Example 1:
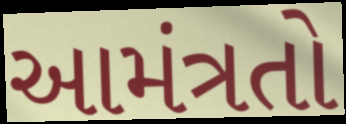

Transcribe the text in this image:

આમંત્રતો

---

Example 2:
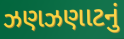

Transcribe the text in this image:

ઝણઝણાટનું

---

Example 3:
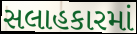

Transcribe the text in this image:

સલાહકારમાં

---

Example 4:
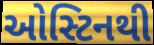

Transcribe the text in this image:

ઓસ્ટિનથી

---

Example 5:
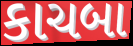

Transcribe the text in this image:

કાચબા